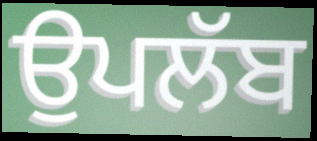
ਉਪਲੱਬ